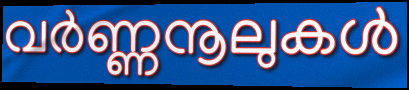
വർണ്ണനൂലുകൾ